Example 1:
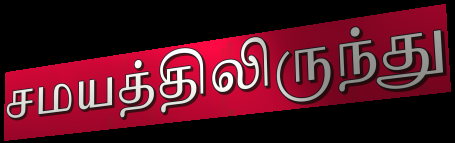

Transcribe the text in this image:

சமயத்திலிருந்து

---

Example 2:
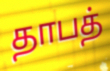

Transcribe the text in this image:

தாபத்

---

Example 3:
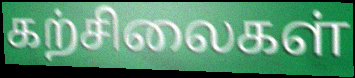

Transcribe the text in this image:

கற்சிலைகள்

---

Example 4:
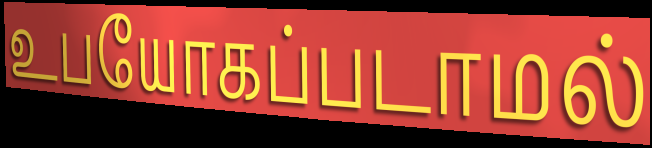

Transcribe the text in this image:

உபயோகப்படாமல்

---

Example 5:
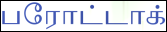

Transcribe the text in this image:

பரோட்டாக்